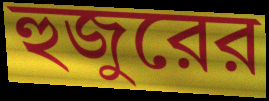
হুজুরের